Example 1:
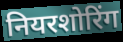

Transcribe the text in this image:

नियरशोरिंग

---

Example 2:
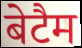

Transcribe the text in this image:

बेटैम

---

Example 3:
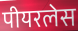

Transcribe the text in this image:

पीयरलेस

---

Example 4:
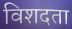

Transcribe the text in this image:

विशदता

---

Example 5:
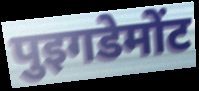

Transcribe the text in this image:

पुइगडेमोंट